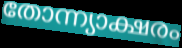
തോന്ന്യാക്ഷരം